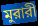
মুরারী